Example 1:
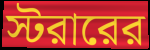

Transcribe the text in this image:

স্টরারের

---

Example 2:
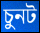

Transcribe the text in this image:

চুনট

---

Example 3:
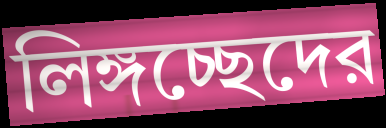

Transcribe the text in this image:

লিঙ্গচ্ছেদের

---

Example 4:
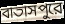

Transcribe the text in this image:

বাতাসপুরে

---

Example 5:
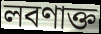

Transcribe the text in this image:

লবণাক্ত